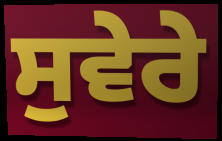
ਸੁਵੇਰੇ